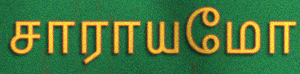
சாராயமோ